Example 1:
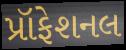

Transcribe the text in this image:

પ્રૉફેશનલ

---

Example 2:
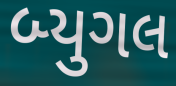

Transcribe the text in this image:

બ્યુગલ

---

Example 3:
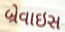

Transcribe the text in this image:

બ્રેવાઇસ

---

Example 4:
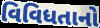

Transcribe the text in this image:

વિવિધતાનો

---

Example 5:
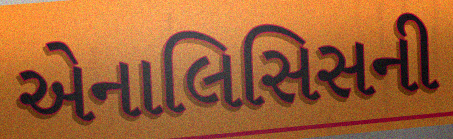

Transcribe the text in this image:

એનાલિસિસની